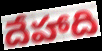
దేహాది